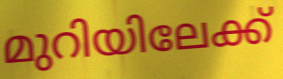
മുറിയിലേക്ക്